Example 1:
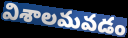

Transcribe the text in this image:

విశాలమవడం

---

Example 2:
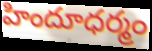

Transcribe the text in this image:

హిందూధర్మం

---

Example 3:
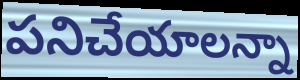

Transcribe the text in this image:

పనిచేయాలన్నా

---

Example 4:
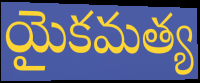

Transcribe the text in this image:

యైకమత్య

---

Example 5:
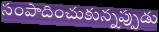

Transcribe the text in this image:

సంపాదించుకున్నప్పుడు